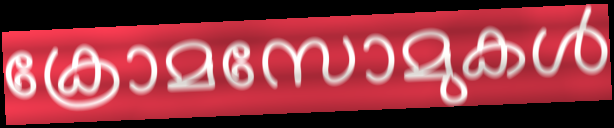
ക്രോമസോമുകൾ